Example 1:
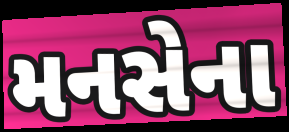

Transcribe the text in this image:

મનસેના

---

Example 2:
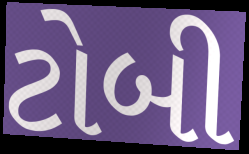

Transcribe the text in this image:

ટોબી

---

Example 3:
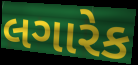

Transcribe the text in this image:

લગારેક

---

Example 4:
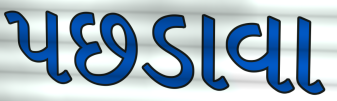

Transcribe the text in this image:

પછડાવા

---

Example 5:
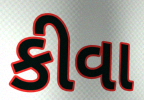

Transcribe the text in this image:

કીવા